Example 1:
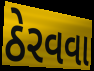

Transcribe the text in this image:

ઠેરવવા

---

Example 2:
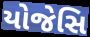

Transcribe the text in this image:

યોજેસિ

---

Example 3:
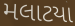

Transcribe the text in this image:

મલાટયા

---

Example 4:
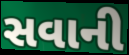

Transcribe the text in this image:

સવાની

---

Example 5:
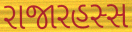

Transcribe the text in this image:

રાજારહસ્સ